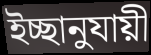
ইচ্ছানুযায়ী